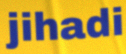
jihadi